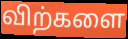
விற்களை